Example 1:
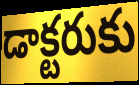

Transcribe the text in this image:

డాక్టరుకు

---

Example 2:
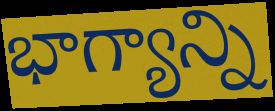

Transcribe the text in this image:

భాగ్యాన్ని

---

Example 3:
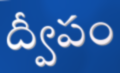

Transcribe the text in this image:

ద్వీపం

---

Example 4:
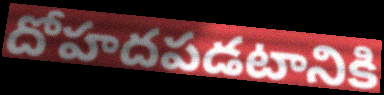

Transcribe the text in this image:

దోహదపడటానికి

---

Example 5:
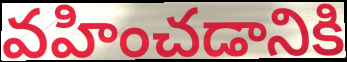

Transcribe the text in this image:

వహించడానికి